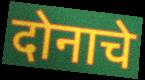
दोनाचे